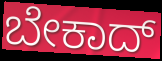
ಬೇಕಾದ್